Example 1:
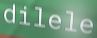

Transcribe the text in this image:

dilele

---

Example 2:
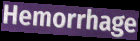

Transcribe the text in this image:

Hemorrhage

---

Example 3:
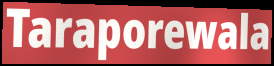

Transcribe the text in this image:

Taraporewala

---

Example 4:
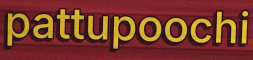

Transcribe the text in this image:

pattupoochi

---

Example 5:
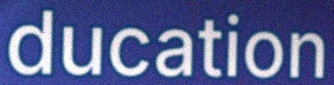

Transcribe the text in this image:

ducation